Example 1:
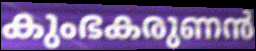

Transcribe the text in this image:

കുംഭകരുണൻ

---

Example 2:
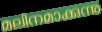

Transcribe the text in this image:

മലിനമാക്കുന്നു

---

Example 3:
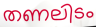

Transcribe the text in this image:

തണലിടം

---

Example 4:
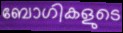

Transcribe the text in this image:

ബോഗികളുടെ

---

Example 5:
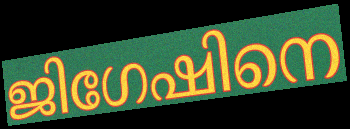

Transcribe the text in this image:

ജിഗേഷിനെ